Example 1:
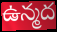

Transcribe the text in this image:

ఉన్మద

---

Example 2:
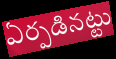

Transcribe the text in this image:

ఏర్పడినట్టు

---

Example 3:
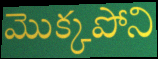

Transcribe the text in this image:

మొక్కపోని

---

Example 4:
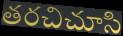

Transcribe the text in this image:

తరచిచూసి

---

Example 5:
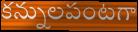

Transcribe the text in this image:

కన్నులపంటగా